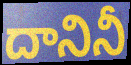
దానినీ